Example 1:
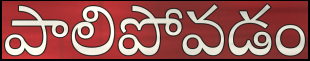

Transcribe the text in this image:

పాలిపోవడం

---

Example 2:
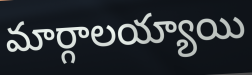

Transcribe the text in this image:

మార్గాలయ్యాయి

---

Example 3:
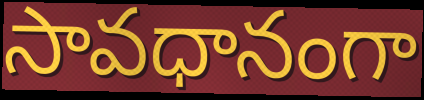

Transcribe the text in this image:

సావధానంగా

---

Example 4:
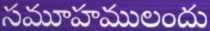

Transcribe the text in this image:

సమూహములందు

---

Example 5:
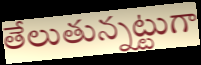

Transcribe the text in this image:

తేలుతున్నట్టుగా